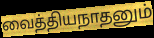
வைத்தியநாதனும்